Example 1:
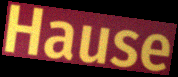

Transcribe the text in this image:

Hause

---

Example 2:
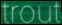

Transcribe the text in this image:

trout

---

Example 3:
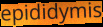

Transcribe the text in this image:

epididymis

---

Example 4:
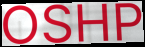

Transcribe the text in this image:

OSHP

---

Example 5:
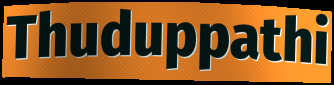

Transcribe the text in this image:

Thuduppathi